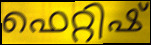
ഫെറ്റിഷ്